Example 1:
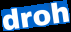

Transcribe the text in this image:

droh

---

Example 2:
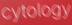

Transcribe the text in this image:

cytology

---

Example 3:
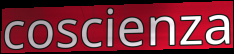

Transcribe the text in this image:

coscienza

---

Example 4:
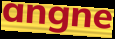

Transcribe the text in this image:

angne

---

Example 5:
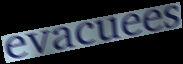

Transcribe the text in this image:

evacuees